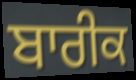
ਬਾਰੀਕ